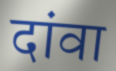
दांवा